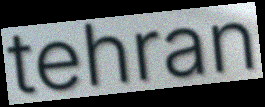
tehran